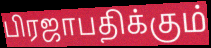
பிரஜாபதிக்கும்